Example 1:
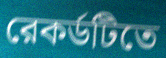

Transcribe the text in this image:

রেকর্ডটিতে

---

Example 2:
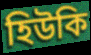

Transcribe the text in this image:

হিউকি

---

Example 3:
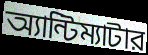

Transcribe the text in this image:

অ্যান্টিম্যাটার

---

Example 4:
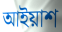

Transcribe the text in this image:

আইয়াশ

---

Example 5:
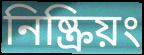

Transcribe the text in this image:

নিষ্ক্রিয়ং